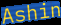
Ashin